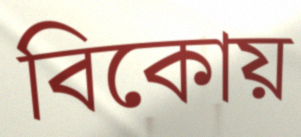
বিকোয়